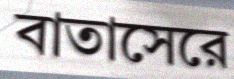
বাতাসেরে